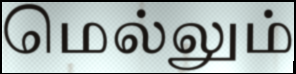
மெல்லும்